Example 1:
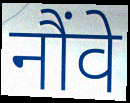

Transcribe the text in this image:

नौंवे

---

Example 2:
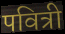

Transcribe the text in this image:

पवित्री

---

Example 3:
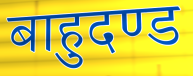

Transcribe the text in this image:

बाहुदण्ड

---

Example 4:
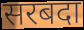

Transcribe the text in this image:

सरबदा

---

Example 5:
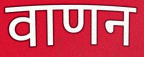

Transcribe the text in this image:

वाणन